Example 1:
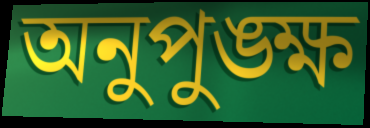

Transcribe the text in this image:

অনুপুঙ্ক্ষ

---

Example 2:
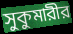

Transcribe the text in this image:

সুকুমারীর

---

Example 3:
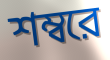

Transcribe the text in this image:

শম্বরে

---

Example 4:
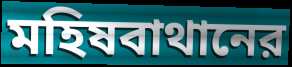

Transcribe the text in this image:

মহিষবাথানের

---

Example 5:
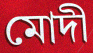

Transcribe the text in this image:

মোদী